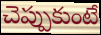
చెప్పుకుంటే